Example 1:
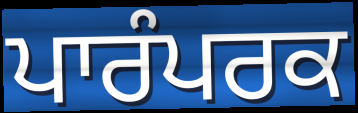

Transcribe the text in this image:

ਪਾਰੰਪਰਕ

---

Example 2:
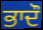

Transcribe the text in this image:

ਭਾਦੌ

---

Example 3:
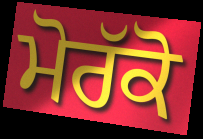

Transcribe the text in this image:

ਮੋਰੱਕੋ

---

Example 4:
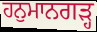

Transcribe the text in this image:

ਹਨੁਮਾਨਗੜ੍ਹ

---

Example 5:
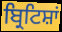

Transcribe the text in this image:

ਬ੍ਰਿਟਿਸ਼ਾਂ